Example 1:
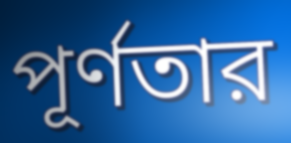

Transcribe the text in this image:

পূর্ণতার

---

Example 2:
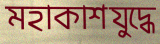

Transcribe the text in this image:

মহাকাশযুদ্ধে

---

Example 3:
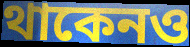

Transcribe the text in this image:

থাকেনও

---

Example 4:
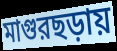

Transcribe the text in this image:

মাগুরছড়ায়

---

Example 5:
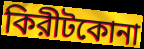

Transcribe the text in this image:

কিরীটকোনা